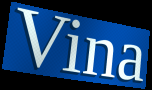
Vina